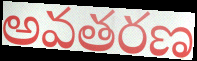
అవతరణ